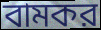
বামকর